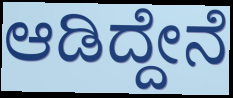
ಆಡಿದ್ದೇನೆ